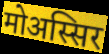
मोअस्सिर